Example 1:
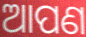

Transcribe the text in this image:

ଆପଣ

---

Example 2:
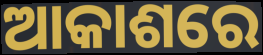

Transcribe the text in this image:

ଆକାଶରେ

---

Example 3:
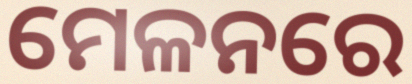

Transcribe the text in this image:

ମେଳନରେ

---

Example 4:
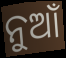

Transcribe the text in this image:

ନୁଆଁ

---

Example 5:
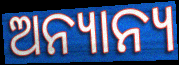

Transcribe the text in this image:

ଅନ୍ୟାନ୍ୟ